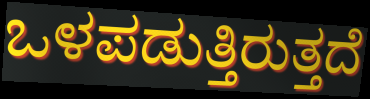
ಒಳಪಡುತ್ತಿರುತ್ತದೆ